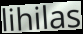
lihilas